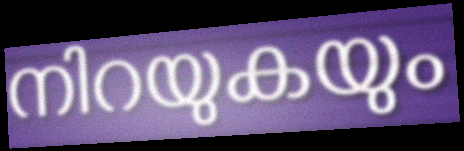
നിറയുകയും